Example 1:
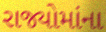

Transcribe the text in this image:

રાજ્યોમાંના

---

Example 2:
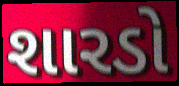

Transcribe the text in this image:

શારડો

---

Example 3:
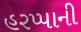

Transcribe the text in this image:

હરપ્પાની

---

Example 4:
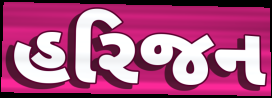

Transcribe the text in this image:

હરિજન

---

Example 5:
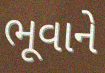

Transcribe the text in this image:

ભૂવાને